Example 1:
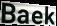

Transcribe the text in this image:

Baek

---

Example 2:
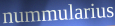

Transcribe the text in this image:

nummularius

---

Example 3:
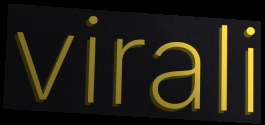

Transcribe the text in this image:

virali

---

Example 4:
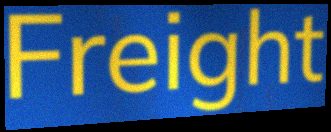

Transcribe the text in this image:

Freight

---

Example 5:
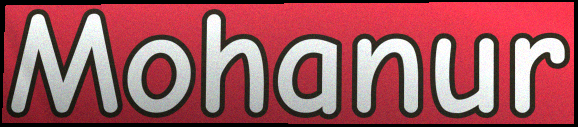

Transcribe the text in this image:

Mohanur